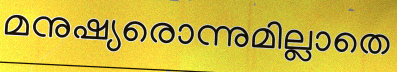
മനുഷ്യരൊന്നുമില്ലാതെ